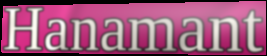
Hanamant